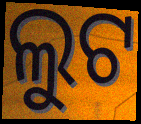
ଲୁଟ